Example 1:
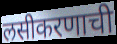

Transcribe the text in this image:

लसीकरणाची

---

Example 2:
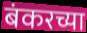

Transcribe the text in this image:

बंकरच्या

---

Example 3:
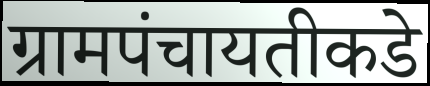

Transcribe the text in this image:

ग्रामपंचायतीकडे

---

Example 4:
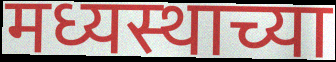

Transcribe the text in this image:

मध्यस्थाच्या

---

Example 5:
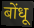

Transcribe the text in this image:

बोंधू